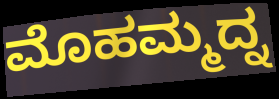
ಮೊಹಮ್ಮದ್ನ